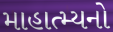
માહાત્મ્યનો